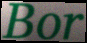
Bor